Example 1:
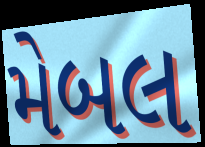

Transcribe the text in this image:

મેબલ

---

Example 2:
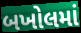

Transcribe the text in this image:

બખોલમાં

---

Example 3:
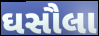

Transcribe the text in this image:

ઘસૌલા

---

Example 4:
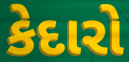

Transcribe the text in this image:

કેદારો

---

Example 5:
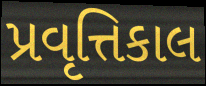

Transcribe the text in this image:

પ્રવૃત્તિકાલ